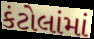
કંટોલાંમાં